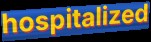
hospitalized